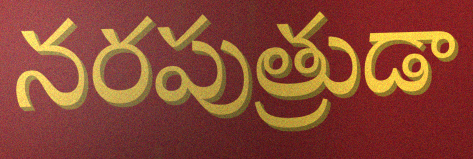
నరపుత్రుడా